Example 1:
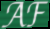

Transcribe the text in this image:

AF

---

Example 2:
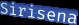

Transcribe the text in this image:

Sirisena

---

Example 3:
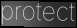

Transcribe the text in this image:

protect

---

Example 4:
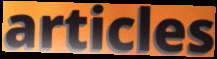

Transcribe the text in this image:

articles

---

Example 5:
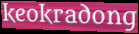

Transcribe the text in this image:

keokradong